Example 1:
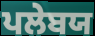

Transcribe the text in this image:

ਪਲੇਬਯ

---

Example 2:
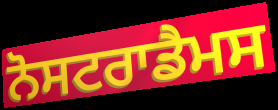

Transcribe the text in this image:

ਨੋਸਟਰਾਡੈਮਸ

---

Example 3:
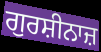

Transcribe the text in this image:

ਗੁਰਸ਼ੀਨਾਜ਼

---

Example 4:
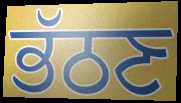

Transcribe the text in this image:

ਭੱਠਣ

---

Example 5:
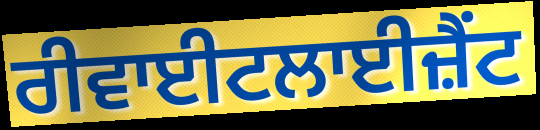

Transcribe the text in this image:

ਰੀਵਾਈਟਲਾਈਜ਼ੈਂਟ